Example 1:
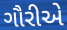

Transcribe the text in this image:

ગૌરીએ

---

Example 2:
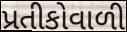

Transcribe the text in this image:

પ્રતીકોવાળી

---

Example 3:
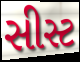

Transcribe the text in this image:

સીસ્ટ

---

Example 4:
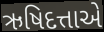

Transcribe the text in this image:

ઋષિદત્તાએ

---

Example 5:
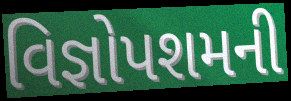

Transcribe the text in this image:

વિજ્ઞોપશમની